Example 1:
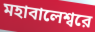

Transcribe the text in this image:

মহাবালেশ্বরে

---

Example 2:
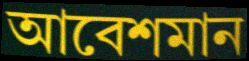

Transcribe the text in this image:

আবেশমান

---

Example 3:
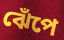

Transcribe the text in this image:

ঝেঁপে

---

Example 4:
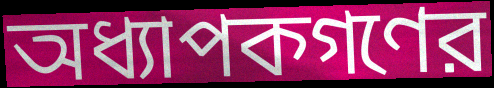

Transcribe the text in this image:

অধ্যাপকগণের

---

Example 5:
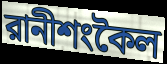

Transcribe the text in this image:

রানীশংকৈল